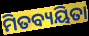
ମିତବ୍ୟୟିତା